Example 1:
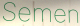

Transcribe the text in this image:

Semen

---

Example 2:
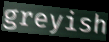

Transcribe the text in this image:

greyish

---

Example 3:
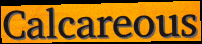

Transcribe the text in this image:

Calcareous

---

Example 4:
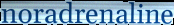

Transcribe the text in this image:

noradrenaline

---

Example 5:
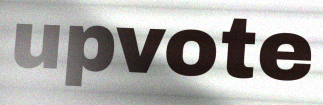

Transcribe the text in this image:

upvote